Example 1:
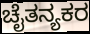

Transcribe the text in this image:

ಚೈತನ್ಯಕರ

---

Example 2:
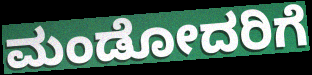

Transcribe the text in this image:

ಮಂಡೋದರಿಗೆ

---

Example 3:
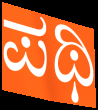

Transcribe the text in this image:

ಪಥಿ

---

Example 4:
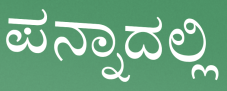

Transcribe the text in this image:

ಪನ್ನಾದಲ್ಲಿ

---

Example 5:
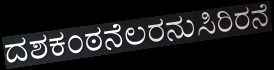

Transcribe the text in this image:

ದಶಕಂಠನೆಲರನುಸಿರಿರನೆ